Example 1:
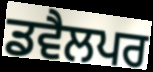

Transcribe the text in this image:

ਡਵੈਲਪਰ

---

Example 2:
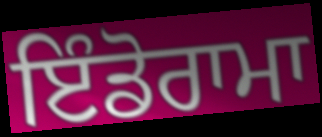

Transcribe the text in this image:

ਇੰਡੋਰਾਮਾ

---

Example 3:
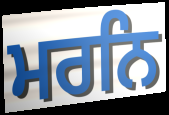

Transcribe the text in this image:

ਮਰਨਿ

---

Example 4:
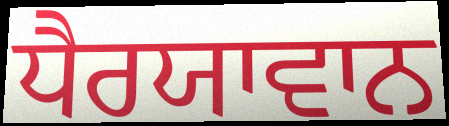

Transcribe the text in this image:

ਧੈਰਯਾਵਾਨ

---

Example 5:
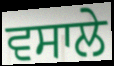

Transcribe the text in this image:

ਵਸਾਲੇ